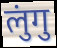
लुंगु